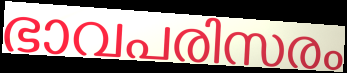
ഭാവപരിസരം